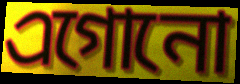
এগোনো